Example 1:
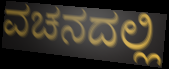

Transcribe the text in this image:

ವಚನದಲ್ಲಿ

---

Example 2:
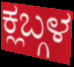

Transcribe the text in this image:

ಕ್ಲಬ್ಗಳ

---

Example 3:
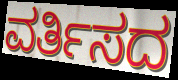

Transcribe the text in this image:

ವರ್ತಿಸದ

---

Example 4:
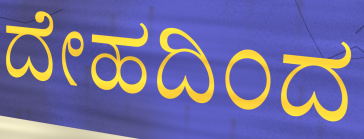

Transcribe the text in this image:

ದೇಹದಿಂದ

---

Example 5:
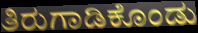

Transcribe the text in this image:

ತಿರುಗಾಡಿಕೊಂಡು